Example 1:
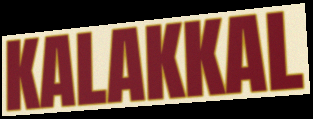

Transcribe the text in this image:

KALAKKAL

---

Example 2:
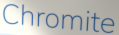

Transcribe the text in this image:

Chromite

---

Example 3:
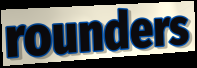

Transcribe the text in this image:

rounders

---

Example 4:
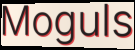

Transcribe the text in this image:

Moguls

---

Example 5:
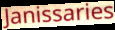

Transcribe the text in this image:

Janissaries